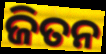
ଜିତନ